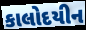
કાલોદયીન